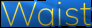
Waist